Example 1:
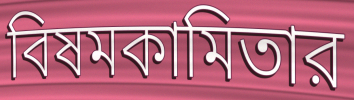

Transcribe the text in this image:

বিষমকামিতার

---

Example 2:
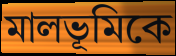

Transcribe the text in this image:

মালভূমিকে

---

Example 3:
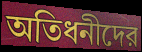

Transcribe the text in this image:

অতিধনীদের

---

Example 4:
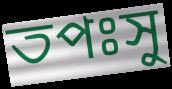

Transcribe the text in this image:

তপঃসু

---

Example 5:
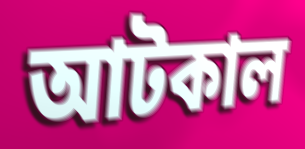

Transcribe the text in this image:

আটকাল